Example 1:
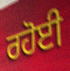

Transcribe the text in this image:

ਰਹੋਈ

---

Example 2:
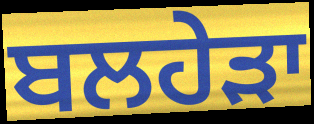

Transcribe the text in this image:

ਬਲਹੇੜਾ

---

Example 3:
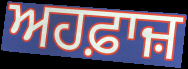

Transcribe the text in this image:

ਅਹਫ਼ਾਜ਼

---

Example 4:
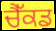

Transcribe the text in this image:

ਚੈੱਕਡ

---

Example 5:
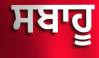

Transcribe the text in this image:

ਸਬਾਹੂ